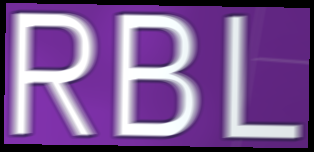
RBL